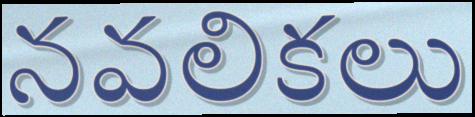
నవలికలు